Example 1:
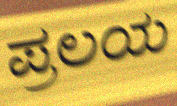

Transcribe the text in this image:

ಪ್ರಲಯ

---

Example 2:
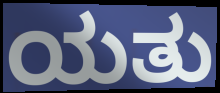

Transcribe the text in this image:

ಯತು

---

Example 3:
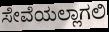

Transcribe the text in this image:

ಸೇವೆಯಲ್ಲಾಗಲಿ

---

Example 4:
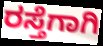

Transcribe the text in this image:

ರಸ್ತೆಗಾಗಿ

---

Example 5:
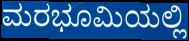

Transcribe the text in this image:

ಮರಭೂಮಿಯಲ್ಲಿ